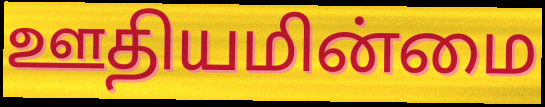
ஊதியமின்மை